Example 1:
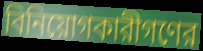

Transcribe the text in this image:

বিনিয়োগকারীগণের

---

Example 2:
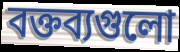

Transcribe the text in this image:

বক্তব্যগুলো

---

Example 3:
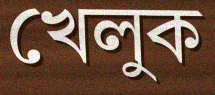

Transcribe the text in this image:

খেলুক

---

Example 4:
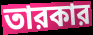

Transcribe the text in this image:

তারকার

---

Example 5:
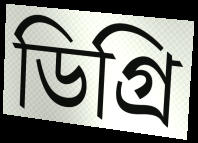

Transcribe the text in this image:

ডিগ্রি